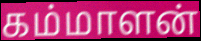
கம்மாளன்